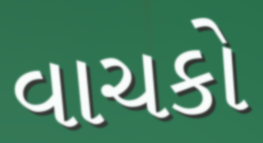
વાચકો